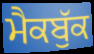
ਮੈਕਬੁੱਕ